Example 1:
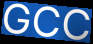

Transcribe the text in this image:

GCC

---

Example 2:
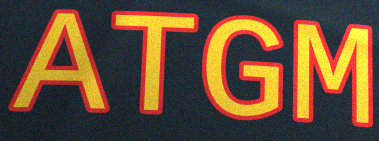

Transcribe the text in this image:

ATGM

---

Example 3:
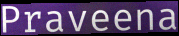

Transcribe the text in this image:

Praveena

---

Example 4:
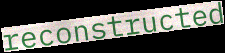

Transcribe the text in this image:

reconstructed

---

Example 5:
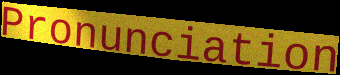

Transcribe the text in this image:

Pronunciation